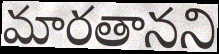
మారతానని